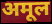
अमूल